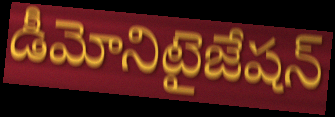
డీమోనిటైజేషన్